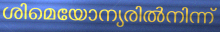
ശിമെയോന്യരിൽനിന്ന്